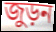
জুড়ন